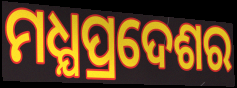
ମଧ୍ଯପ୍ରଦେଶର